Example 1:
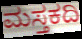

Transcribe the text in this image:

ಮಸ್ತಕದಿ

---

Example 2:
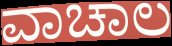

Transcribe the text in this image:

ವಾಚಾಲ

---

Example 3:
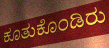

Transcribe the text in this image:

ಕೂತುಕೊಂಡಿರು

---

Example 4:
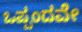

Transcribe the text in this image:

ಒಪ್ಪಂದವೇ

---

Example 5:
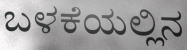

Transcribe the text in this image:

ಬಳಕೆಯಲ್ಲಿನ